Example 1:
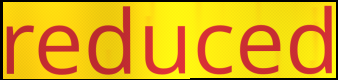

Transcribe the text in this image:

reduced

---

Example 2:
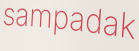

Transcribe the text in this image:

sampadak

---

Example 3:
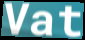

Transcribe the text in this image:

Vat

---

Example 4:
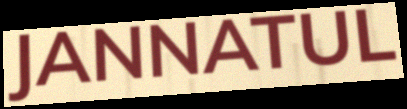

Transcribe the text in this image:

JANNATUL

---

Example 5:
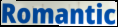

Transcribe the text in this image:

Romantic